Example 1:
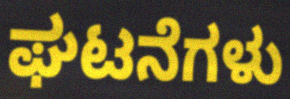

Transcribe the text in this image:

ಘಟನೆಗಳು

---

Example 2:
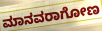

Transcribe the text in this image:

ಮಾನವರಾಗೋಣ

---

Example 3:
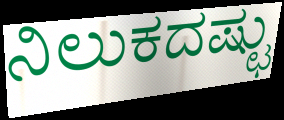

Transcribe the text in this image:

ನಿಲುಕದಷ್ಟು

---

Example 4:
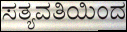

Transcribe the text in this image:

ಸತ್ಯವತಿಯಿಂದ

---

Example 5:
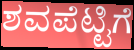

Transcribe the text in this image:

ಶವಪೆಟ್ಟಿಗೆ